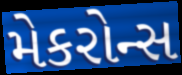
મેકરોન્સ